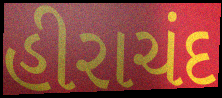
હીરાચંદ